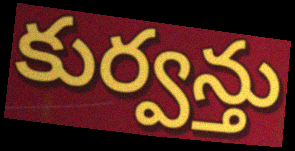
కుర్వన్తు